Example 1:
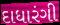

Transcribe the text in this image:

દાધારંગી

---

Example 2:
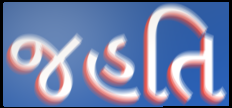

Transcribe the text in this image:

જહતિ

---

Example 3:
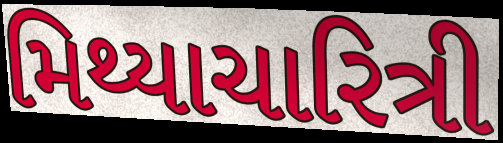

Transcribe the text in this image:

મિથ્યાચારિત્રી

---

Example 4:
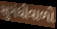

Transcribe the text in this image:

સુગંધીવાળો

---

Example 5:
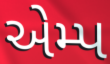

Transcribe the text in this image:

એમ્પ